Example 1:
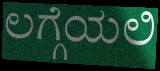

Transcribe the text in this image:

ಲಗ್ಗೆಯಲಿ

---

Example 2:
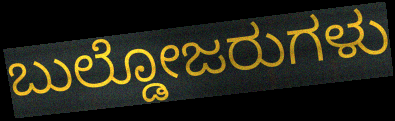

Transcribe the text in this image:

ಬುಲ್ಡೋಜರುಗಳು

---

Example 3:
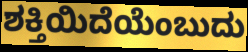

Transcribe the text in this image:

ಶಕ್ತಿಯಿದೆಯೆಂಬುದು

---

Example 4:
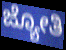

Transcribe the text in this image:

ಜ್ಯೋತಿ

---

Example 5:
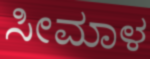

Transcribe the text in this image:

ಸೀಮಾಳ